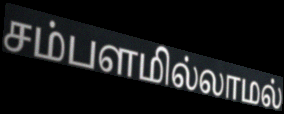
சம்பளமில்லாமல்